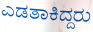
ಎಡತಾಕಿದ್ದರು